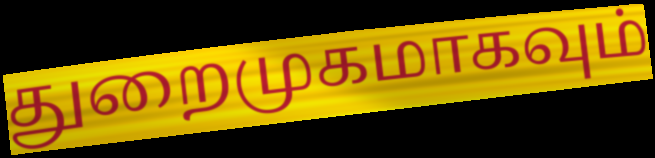
துறைமுகமாகவும்